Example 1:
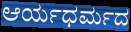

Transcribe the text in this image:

ಆರ್ಯಧರ್ಮದ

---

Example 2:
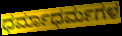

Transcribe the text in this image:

ಧರ್ಮಾಧರ್ಮಗಳ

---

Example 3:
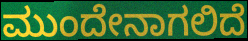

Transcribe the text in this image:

ಮುಂದೇನಾಗಲಿದೆ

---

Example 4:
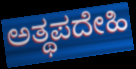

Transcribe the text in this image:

ಅತ್ಥಪದೇಹಿ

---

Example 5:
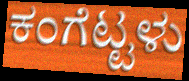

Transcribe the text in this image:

ಕಂಗೆಟ್ಟಳು